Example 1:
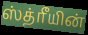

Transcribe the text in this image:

ஸ்த்ரீயின்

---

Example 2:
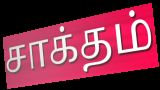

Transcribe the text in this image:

சாக்தம்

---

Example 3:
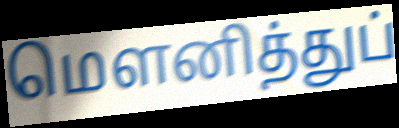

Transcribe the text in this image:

மெளனித்துப்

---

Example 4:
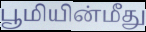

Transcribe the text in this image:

பூமியின்மீது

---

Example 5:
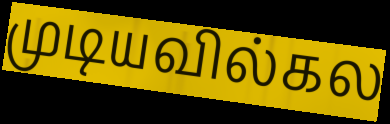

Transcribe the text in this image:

முடியவில்கல